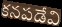
కనపడేవి